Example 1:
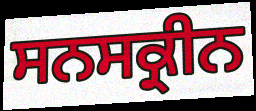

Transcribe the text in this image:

ਸਨਸਕ੍ਰੀਨ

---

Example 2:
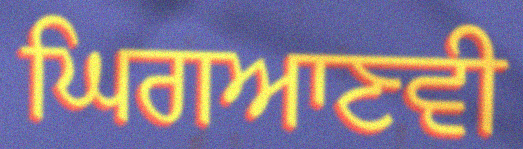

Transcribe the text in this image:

ਘਿਗਆਣਵੀ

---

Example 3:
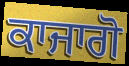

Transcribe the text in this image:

ਕਾਜਾਗੋ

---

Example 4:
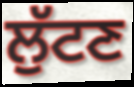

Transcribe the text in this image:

ਲੁੱਟਣ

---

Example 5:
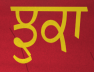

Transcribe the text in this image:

ਝੁਕਾ